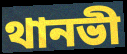
থানভী